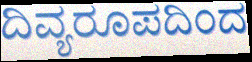
ದಿವ್ಯರೂಪದಿಂದ